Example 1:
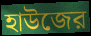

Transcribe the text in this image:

হাউজের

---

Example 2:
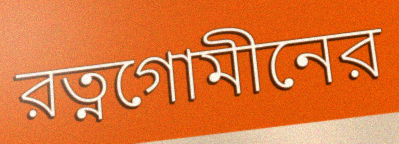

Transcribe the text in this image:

রত্নগোমীনের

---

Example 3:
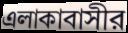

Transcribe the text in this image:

এলাকাবাসীর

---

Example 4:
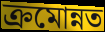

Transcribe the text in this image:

ক্রমোন্নত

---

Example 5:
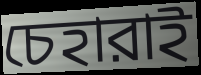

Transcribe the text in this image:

চেহারাই